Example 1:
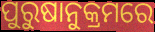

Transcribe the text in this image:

ପୁରୁଷାନୁକ୍ରମରେ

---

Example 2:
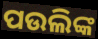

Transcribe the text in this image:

ପଉଲିଙ୍କ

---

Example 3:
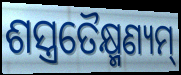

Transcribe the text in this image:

ଶସ୍ତ୍ରତୈକ୍ଷ୍ମଣ୍ୟମ୍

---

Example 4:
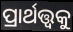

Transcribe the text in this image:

ପ୍ରାର୍ଥତ୍ତ୍ୱକୁ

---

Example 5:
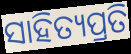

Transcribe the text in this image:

ସାହିତ୍ୟପ୍ରତି